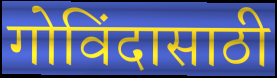
गोविंदासाठी